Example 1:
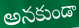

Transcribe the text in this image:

అనకుండా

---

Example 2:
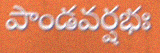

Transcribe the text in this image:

పాండవర్షభః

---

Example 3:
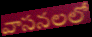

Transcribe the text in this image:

వాసనలలో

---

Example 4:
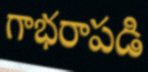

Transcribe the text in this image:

గాభరాపడి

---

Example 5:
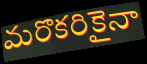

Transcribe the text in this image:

మరొకరికైనా